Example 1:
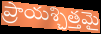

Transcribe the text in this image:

ప్రాయశ్చిత్తమై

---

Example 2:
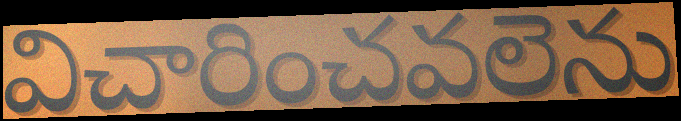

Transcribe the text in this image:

విచారించవలెను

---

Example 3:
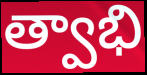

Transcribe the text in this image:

త్వాభి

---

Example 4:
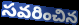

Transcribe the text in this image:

సవరించిన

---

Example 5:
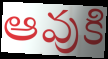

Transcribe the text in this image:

ఆవుకి